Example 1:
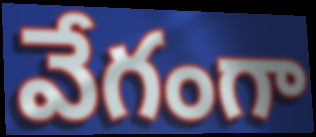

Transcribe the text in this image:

వేగంగా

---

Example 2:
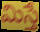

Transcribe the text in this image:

మిస్తే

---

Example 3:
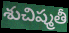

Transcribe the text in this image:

శుచిష్మతీ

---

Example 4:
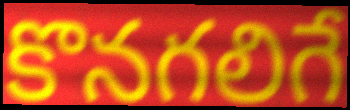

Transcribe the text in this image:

కొనగలిగే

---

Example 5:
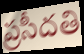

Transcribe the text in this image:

ప్రసీదతి